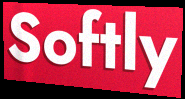
Softly